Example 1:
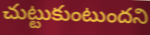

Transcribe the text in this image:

చుట్టుకుంటుందని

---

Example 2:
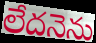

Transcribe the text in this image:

లేదనెను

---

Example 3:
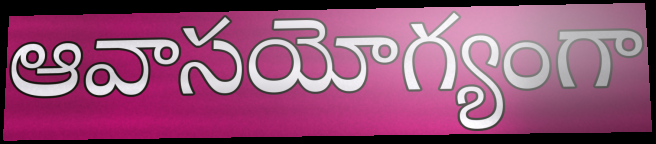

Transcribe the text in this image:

ఆవాసయోగ్యంగా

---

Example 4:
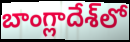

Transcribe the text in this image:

బాంగ్లాదేశ్‌లో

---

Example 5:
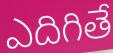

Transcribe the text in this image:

ఎదిగితే